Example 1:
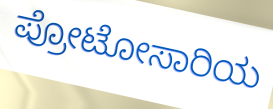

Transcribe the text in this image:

ಪ್ರೋಟೋಸಾರಿಯ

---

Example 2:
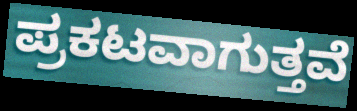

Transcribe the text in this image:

ಪ್ರಕಟವಾಗುತ್ತವೆ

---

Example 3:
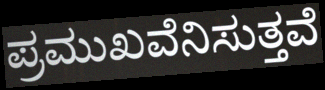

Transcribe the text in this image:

ಪ್ರಮುಖವೆನಿಸುತ್ತವೆ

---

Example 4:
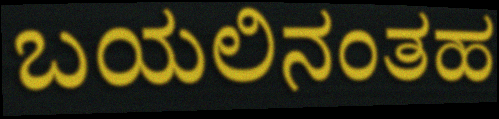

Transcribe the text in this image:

ಬಯಲಿನಂತಹ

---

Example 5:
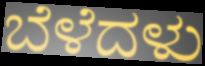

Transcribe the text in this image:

ಬೆಳೆದಳು